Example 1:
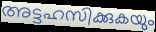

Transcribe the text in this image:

അട്ടഹസിക്കുകയും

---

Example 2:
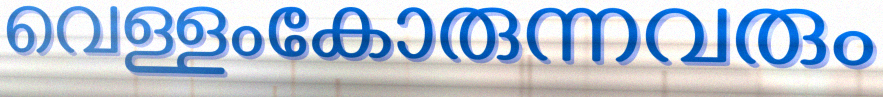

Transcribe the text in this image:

വെള്ളംകോരുന്നവരും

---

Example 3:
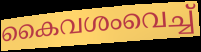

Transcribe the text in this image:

കൈവശംവെച്ച്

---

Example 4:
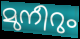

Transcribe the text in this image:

മുനീറും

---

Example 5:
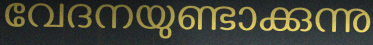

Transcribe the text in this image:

വേദനയുണ്ടാക്കുന്നു